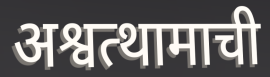
अश्वत्थामाची